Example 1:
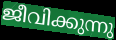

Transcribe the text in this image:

ജീവിക്കുന്നു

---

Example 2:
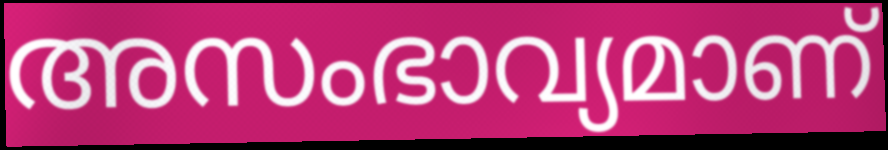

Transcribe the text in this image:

അസംഭാവ്യമാണ്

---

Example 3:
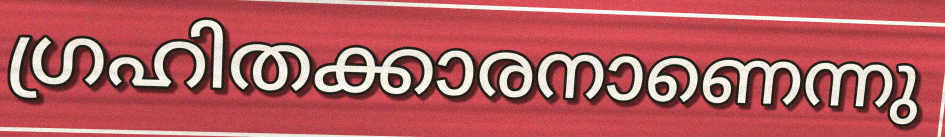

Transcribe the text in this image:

ഗ്രഹിതക്കാരനാണെന്നു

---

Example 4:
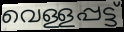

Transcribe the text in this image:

വെള്ളപ്പട്ട്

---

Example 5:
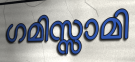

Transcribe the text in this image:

ഗമിസ്സാമി